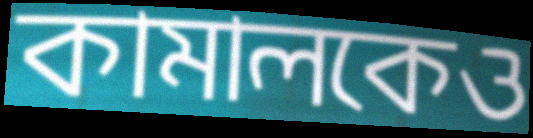
কামালকেও